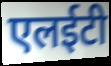
एलईटी